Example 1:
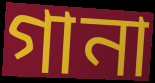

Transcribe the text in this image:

গানা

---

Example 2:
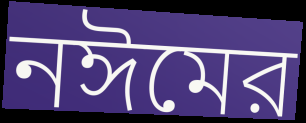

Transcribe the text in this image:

নঈমের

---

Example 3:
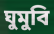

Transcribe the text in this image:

ঘুমুবি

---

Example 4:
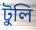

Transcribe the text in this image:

টুলি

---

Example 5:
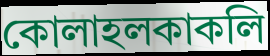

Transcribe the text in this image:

কোলাহলকাকলি